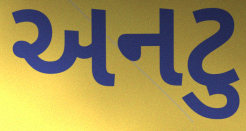
અનટુ